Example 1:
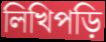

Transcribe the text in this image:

লিখিপড়ি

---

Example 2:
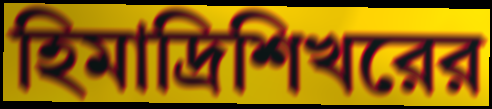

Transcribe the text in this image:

হিমাদ্রিশিখরের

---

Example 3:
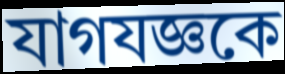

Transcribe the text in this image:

যাগযজ্ঞকে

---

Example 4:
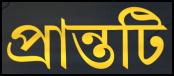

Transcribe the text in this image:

প্রান্তটি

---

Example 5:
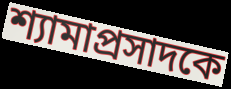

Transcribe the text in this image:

শ্যামাপ্রসাদকে